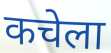
कचेला